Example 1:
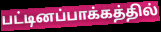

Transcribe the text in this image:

பட்டினப்பாக்கத்தில்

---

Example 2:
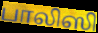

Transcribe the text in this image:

பாலிஸி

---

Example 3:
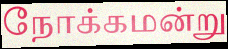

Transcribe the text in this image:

நோக்கமன்று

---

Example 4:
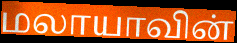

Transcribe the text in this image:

மலாயாவின்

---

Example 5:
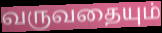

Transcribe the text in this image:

வருவதையும்